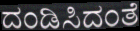
ದಂಡಿಸಿದಂತೆ